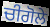
ਚੀਗੋਲੇ